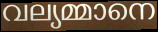
വല്യമ്മാനെ